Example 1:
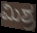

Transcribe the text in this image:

ಮಿಶ್ರ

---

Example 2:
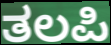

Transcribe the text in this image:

ತಲಪಿ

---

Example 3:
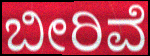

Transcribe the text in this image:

ಬೀರಿವೆ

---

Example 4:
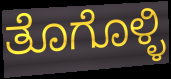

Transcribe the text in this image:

ತೊಗೊಳ್ಳಿ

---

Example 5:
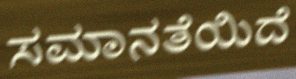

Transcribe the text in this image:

ಸಮಾನತೆಯಿದೆ